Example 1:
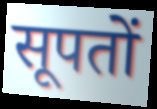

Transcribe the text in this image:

सूपतों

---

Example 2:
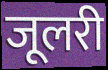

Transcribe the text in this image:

जूलरी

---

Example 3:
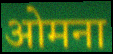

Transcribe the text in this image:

ओमना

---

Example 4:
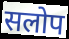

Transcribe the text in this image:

सलोप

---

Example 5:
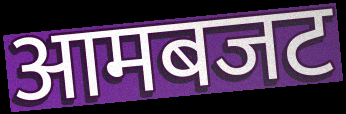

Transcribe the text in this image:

आमबजट